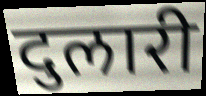
दुलारी